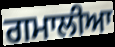
ਗਮਾਲੀਆ